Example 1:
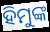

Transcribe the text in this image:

ହିମୁଙ୍କ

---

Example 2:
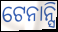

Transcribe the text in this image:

ଟେନାନ୍ସି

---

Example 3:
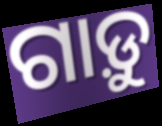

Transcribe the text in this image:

ଗାଡ଼ୁ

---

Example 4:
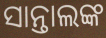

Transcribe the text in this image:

ସାନ୍ତାଲଙ୍କ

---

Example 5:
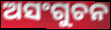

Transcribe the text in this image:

ଅସଂଗୁଚନ